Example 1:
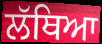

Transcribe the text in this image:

ਲੱਥਿਆ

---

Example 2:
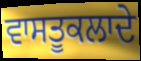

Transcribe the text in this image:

ਵਾਸਤੂਕਲਾਦੇ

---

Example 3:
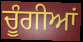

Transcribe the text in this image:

ਚੂੰਗੀਆਂ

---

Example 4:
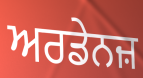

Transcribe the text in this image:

ਅਰਡੇਨਜ਼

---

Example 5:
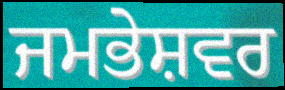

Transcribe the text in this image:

ਜਮਭੇਸ਼ਵਰ